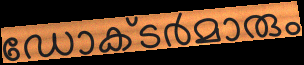
ഡോക്ടർമാരും